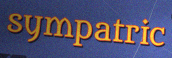
sympatric